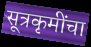
सूत्रकृमींचा